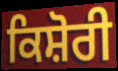
ਕਿਸ਼ੋਰੀ